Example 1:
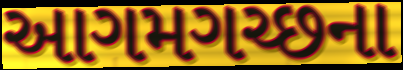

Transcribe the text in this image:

આગમગચ્છના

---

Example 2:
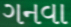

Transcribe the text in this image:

ગનવા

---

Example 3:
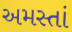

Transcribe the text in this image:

અમસ્તાં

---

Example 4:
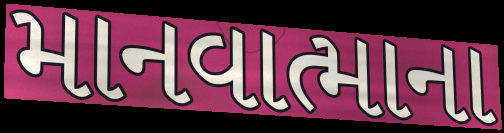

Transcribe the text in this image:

માનવાત્માના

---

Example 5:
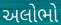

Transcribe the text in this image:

અલોભો